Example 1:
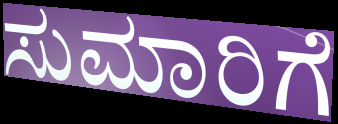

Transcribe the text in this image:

ಸುಮಾರಿಗೆ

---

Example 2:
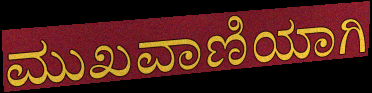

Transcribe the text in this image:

ಮುಖವಾಣಿಯಾಗಿ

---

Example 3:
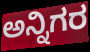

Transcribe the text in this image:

ಅನ್ನಿಗರ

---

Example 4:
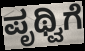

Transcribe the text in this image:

ಪೃಥ್ವಿಗೆ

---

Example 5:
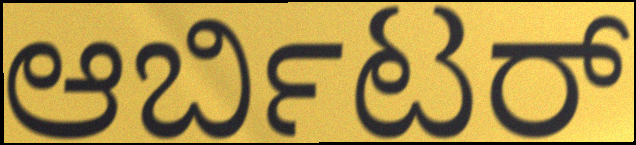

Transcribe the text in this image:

ಆರ್ಬಿಟರ್